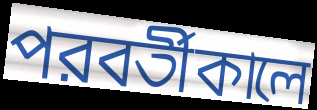
পরবর্তীকালে